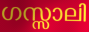
ഗസ്സാലി